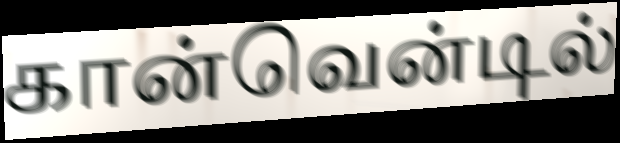
கான்வென்டில்